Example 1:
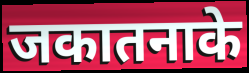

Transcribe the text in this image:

जकातनाके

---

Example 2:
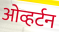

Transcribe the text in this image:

ओव्हर्टन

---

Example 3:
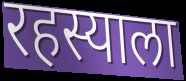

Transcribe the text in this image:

रहस्याला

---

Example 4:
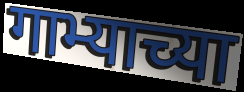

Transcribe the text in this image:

गाभ्याच्या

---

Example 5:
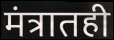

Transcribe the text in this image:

मंत्रातही